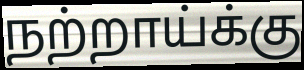
நற்றாய்க்கு